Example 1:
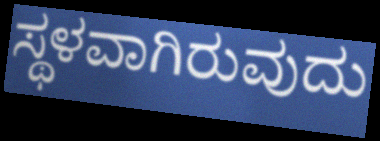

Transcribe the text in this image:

ಸ್ಥಳವಾಗಿರುವುದು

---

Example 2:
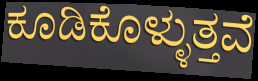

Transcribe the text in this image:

ಕೂಡಿಕೊಳ್ಳುತ್ತವೆ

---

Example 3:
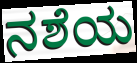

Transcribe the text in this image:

ನಶೆಯ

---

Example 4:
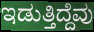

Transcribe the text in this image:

ಇಡುತ್ತಿದ್ದೆವು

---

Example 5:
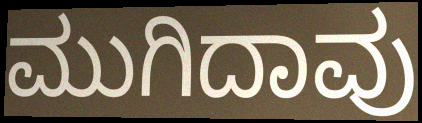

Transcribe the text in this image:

ಮುಗಿದಾವು